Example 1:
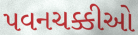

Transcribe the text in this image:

પવનચક્કીઓ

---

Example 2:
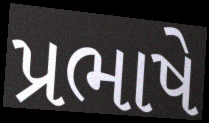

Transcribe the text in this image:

પ્રભાષે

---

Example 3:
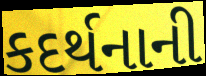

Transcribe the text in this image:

કદર્થનાની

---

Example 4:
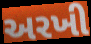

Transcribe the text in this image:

અરખી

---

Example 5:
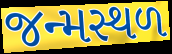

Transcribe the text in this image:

જન્મસ્થળ